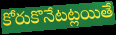
కోరుకొనేటట్లయితే